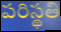
పరిస్థతి